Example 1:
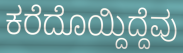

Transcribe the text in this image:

ಕರೆದೊಯ್ದಿದ್ದೆವು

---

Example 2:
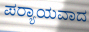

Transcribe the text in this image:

ಪರ‍್ಯಾಯವಾದ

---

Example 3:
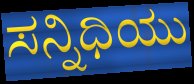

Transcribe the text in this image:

ಸನ್ನಿಧಿಯು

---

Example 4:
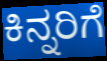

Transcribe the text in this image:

ಕಿನ್ನರಿಗೆ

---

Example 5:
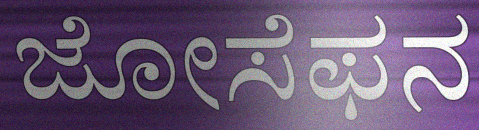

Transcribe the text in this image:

ಜೋಸೆಫನ